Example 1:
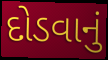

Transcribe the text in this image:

દોડવાનું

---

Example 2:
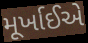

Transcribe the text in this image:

મૂર્ખાઈએ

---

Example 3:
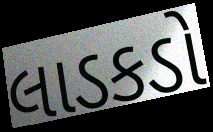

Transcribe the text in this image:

લાડકડો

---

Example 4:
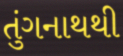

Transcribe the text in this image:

તુંગનાથથી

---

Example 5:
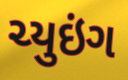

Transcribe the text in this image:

ચ્યુઇંગ